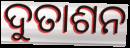
ଦୁତାଶନ